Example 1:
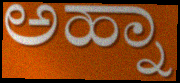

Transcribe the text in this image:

ಅಹ್ನಾ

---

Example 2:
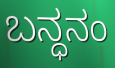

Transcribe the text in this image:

ಬನ್ಧನಂ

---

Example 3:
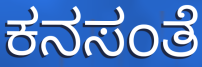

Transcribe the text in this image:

ಕನಸಂತೆ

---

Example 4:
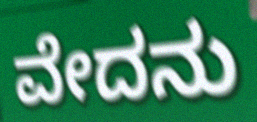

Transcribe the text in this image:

ವೇದನು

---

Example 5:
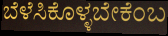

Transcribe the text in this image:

ಬೆಳೆಸಿಕೊಳ್ಳಬೇಕೆಂಬ